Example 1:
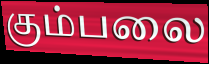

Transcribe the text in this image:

கும்பலை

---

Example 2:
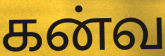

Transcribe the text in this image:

கன்வ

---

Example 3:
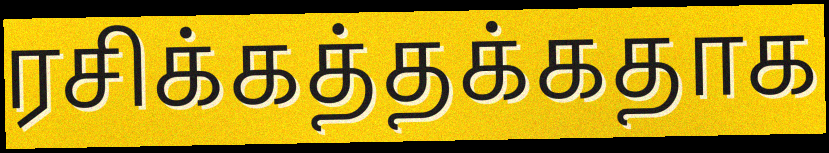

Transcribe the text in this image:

ரசிக்கத்தக்கதாக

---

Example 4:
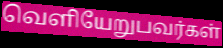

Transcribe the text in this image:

வெளியேறுபவர்கள்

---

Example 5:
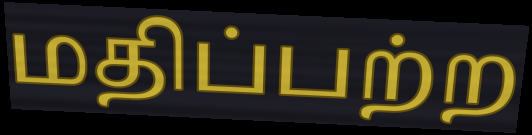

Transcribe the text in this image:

மதிப்பற்ற